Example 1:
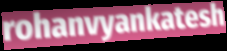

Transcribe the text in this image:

rohanvyankatesh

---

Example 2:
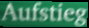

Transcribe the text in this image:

Aufstieg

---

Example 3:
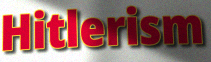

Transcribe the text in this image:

Hitlerism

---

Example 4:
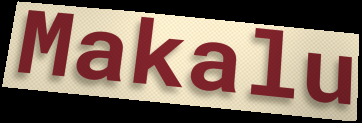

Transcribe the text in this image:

Makalu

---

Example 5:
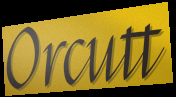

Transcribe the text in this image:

Orcutt